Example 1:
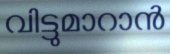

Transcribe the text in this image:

വിട്ടുമാറാൻ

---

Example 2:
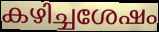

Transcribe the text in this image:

കഴിച്ചശേഷം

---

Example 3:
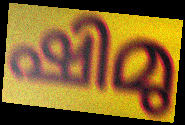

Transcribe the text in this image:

ഷിമു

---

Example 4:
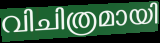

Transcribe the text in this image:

വിചിത്രമായി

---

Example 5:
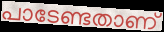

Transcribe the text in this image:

പാടേണ്ടതാണ്